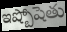
ఇష్బోషెతు